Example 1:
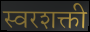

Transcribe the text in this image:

स्वरशक्ती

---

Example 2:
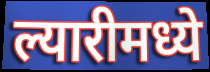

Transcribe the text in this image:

ल्यारीमध्ये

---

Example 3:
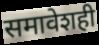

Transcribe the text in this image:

समावेशही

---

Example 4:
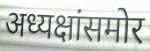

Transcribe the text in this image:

अध्यक्षांसमोर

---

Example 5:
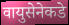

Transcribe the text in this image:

वायुसेनेकडे